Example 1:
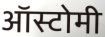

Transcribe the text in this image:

ऑस्टोमी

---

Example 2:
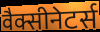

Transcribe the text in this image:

वैक्सीनेटर्स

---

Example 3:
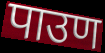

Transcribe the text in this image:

पाउण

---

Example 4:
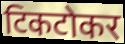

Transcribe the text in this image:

टिकटोकर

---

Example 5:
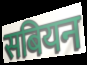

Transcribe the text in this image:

सबियन